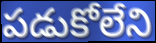
పడుకోలేని